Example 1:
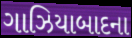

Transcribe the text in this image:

ગાઝિયાબાદના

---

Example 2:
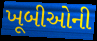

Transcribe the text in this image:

ખૂબીઓની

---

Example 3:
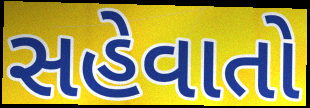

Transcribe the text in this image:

સહેવાતો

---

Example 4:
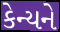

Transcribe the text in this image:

કેન્યને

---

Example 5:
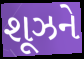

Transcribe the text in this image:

શૂઝને